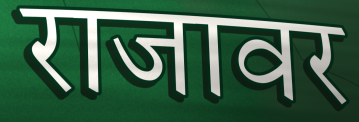
राजावर